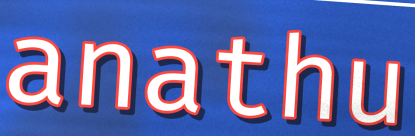
anathu